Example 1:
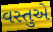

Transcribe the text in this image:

વસ્તુએ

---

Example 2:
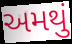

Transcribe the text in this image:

અમથું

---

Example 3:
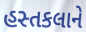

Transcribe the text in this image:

હસ્તકલાને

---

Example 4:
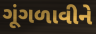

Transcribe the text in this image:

ગૂંગળાવીને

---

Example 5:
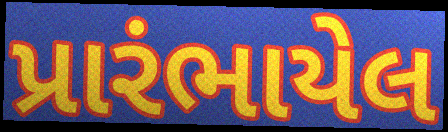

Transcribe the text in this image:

પ્રારંભાયેલ